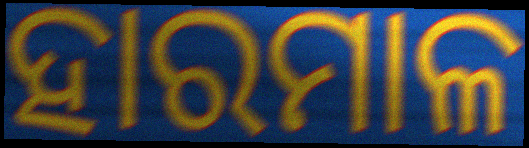
ହାରମାଳ